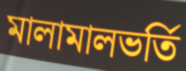
মালামালভর্তি